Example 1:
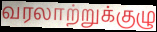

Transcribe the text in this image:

வரலாற்றுக்குழு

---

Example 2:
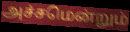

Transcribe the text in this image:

அச்சமென்றும்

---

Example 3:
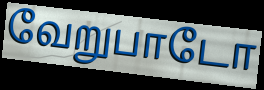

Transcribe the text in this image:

வேறுபாடோ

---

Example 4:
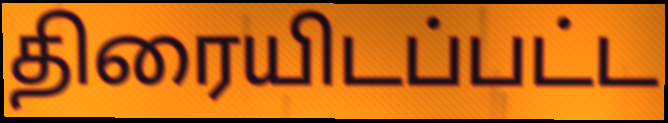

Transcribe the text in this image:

திரையிடப்பட்ட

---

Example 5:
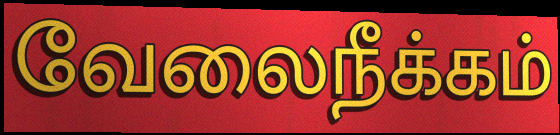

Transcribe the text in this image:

வேலைநீக்கம்